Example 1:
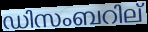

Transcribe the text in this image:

ഡിസംബറില്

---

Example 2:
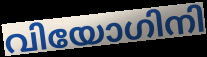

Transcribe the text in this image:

വിയോഗിനി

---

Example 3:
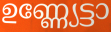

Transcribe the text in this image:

ഉണ്ണ്യേട്ടാ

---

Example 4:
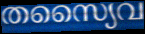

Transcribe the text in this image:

തസ്യൈവ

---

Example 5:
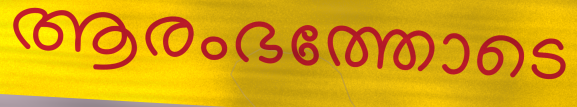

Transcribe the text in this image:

ആരംഭത്തോടെ